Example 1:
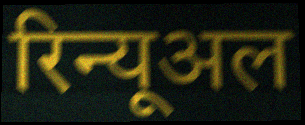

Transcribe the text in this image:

रिन्यूअल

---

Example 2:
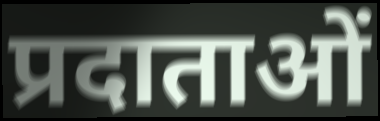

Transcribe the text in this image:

प्रदाताओं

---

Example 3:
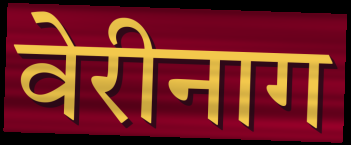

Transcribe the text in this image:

वेरीनाग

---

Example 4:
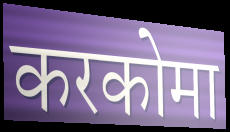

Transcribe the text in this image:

करकोमा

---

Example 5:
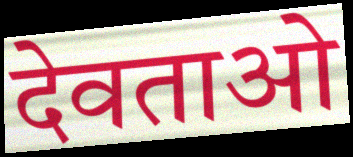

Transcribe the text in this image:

देवताओ